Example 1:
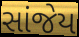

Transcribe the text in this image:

સાંજેય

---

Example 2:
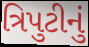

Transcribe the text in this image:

ત્રિપુટીનું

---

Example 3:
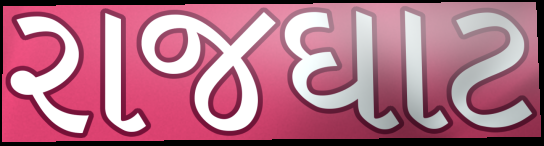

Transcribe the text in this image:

રાજઘાટ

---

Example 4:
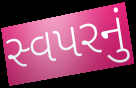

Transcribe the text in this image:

સ્વપરનું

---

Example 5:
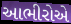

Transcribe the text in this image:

આભીરોએ